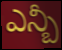
ఎన్బీ